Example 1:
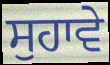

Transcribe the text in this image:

ਸੁਹਾਵੇ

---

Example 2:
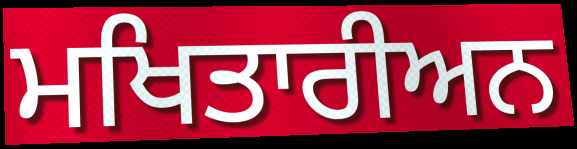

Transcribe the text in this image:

ਮਖਿਤਾਰੀਅਨ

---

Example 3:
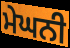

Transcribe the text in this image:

ਮੇਘਨੀ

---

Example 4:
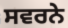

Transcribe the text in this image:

ਸਵਰਨੇ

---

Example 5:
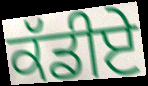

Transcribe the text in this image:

ਕੱਡੀਏ